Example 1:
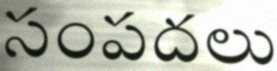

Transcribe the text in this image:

సంపదలు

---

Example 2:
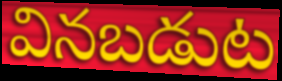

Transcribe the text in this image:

వినబడుట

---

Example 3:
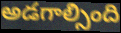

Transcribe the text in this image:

అడగాల్సింది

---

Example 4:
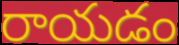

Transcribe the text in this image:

రాయడం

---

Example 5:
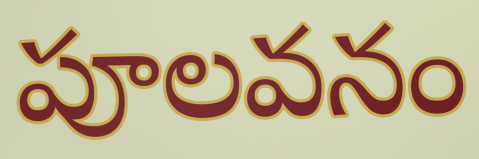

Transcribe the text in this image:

పూలవనం